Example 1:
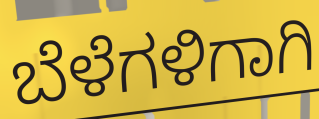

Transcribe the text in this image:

ಬೆಳೆಗಳಿಗಾಗಿ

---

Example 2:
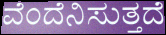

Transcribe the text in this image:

ವೆಂದೆನಿಸುತ್ತದೆ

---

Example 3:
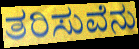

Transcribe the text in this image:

ತರಿಸುವೆನು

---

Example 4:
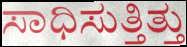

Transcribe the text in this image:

ಸಾಧಿಸುತ್ತಿತ್ತು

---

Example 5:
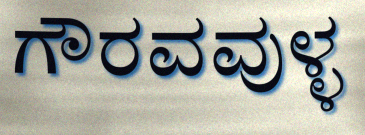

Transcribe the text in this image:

ಗೌರವವುಳ್ಳ